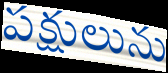
పక్షులును